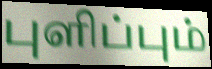
புளிப்பும்